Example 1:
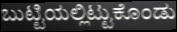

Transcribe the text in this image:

ಬುಟ್ಟಿಯಲ್ಲಿಟ್ಟುಕೊಂಡು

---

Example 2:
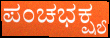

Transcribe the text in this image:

ಪಂಚಭಕ್ಷ್ಯ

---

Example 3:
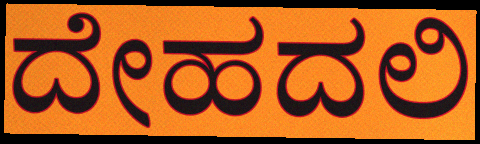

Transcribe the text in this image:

ದೇಹದಲಿ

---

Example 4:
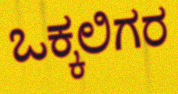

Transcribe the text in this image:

ಒಕ್ಕಲಿಗರ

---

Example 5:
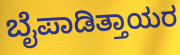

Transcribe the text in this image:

ಬೈಪಾಡಿತ್ತಾಯರ